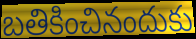
బతికించినందుకు